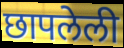
छापलेली